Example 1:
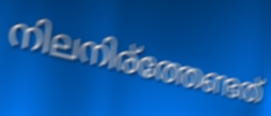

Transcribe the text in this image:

നിലനിര്ത്തേണ്ടത്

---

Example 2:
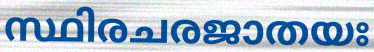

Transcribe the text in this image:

സ്ഥിരചരജാതയഃ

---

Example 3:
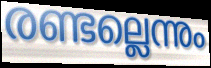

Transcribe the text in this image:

രണ്ടല്ലെന്നും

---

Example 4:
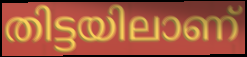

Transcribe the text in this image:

തിട്ടയിലാണ്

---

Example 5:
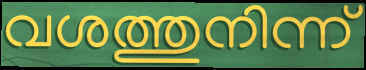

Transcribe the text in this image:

വശത്തുനിന്ന്